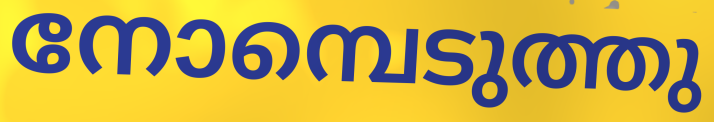
നോമ്പെടുത്തു